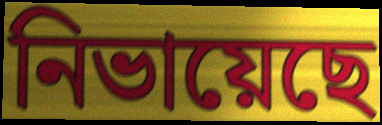
নিভায়েছে